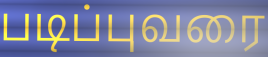
படிப்புவரை